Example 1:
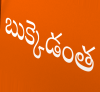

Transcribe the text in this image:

బుక్కెడంత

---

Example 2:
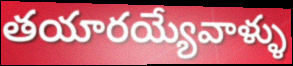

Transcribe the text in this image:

తయారయ్యేవాళ్ళు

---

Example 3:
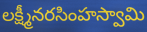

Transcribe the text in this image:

లక్ష్మీనరసింహస్వామి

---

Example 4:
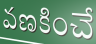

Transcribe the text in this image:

వణకించే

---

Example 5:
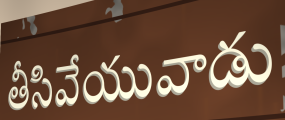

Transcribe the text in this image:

తీసివేయువాడు